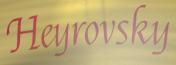
Heyrovsky